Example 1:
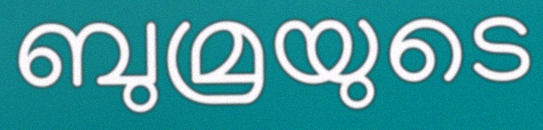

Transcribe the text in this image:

ബുമ്രയുടെ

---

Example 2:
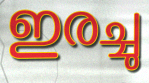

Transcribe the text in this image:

ഇരച്ചു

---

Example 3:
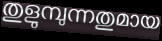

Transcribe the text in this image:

തുളുമ്പുന്നതുമായ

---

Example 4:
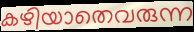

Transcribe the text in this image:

കഴിയാതെവരുന്ന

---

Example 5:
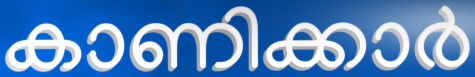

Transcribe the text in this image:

കാണിക്കാർ